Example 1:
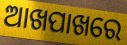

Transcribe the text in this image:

ଆଖପାଖରେ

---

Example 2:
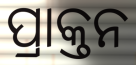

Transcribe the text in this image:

ପ୍ରାକ୍ତନ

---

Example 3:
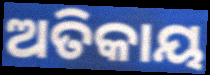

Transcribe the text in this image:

ଅତିକାୟ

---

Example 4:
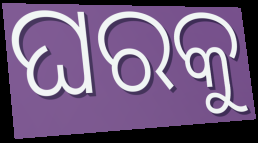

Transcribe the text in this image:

ଘରକୁ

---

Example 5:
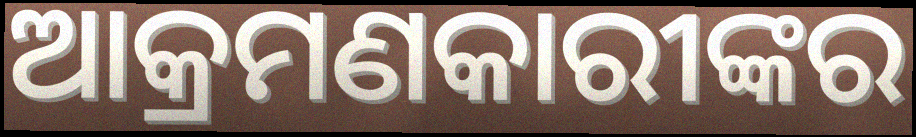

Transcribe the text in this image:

ଆକ୍ରମଣକାରୀଙ୍କର